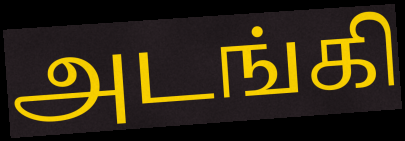
அடங்கி